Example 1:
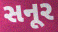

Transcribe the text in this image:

સનૂર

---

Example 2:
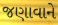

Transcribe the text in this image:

જણાવાને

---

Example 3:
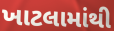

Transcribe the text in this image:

ખાટલામાંથી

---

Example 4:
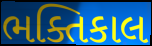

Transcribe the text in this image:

ભક્તિકાલ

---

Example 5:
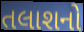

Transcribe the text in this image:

તલાશનો